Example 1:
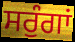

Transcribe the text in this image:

ਸਰੁੰਗਾਂ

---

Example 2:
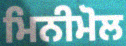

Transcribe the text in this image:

ਮਿਨੀਮੋਲ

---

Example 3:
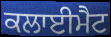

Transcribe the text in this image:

ਕਲਾਈਮੈਟ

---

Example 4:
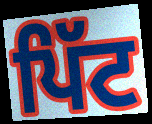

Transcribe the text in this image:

ਪਿੱਟ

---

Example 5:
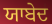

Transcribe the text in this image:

ਯਾਬੇਦ